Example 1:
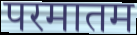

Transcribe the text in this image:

परमातम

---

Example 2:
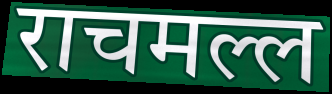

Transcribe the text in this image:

राचमल्ल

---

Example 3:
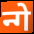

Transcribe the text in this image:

न्गे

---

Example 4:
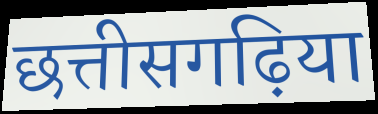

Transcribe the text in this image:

छत्तीसगढ़िया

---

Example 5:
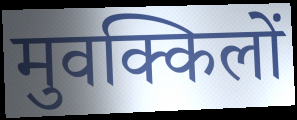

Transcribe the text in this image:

मुवक्किलों